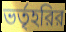
ভর্তৃহরির